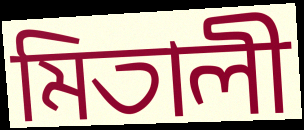
মিতালী